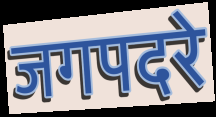
जगपदरे